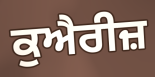
ਕੁਐਰੀਜ਼